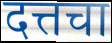
दत्तचा